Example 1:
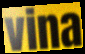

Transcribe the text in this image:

vina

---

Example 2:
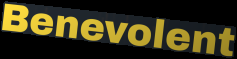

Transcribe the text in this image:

Benevolent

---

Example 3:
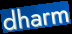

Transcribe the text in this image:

dharm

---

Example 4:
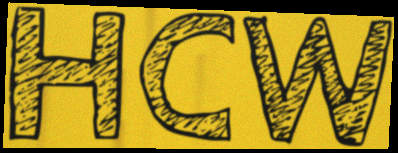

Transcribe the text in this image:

HCW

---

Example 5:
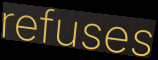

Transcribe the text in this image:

refuses